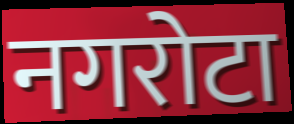
नगरोटा